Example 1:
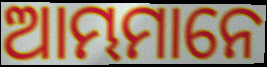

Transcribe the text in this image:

ଆମ୍ଭମାନେ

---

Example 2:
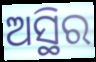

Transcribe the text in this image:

ଅସ୍ଥିର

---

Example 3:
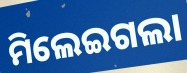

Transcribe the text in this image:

ମିଲେଇଗଲା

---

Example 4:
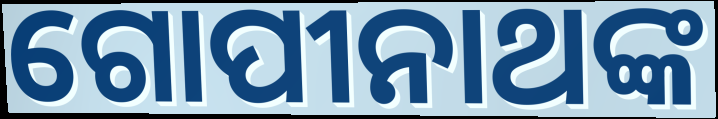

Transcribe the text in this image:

ଗୋପୀନାଥଙ୍କ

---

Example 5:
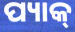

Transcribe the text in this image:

ପ୍ୟାକ୍